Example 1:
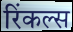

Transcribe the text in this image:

रिंकल्स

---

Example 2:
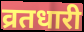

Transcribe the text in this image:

व्रतधारी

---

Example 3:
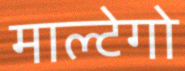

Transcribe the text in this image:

माल्टेगो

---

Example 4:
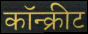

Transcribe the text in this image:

कॉन्क्रीट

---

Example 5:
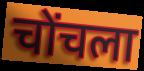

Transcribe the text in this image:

चोंचला